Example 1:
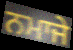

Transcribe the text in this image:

ਨਮਾਜੇ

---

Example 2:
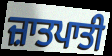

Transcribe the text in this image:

ਜ਼ਾਤਪਾਤੀ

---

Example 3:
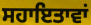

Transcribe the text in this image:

ਸਹਾਇਤਾਵਾਂ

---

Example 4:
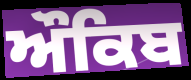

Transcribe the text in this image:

ਔਕਿਬ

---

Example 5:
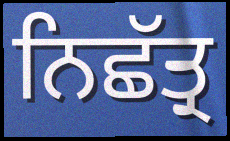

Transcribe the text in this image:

ਨਿਛੱਤ੍ਰ੍ਰ